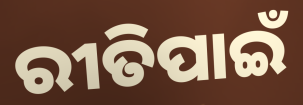
ରୀତିପାଇଁ